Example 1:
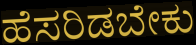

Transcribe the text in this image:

ಹೆಸರಿಡಬೇಕು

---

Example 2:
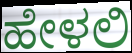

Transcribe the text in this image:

ಹೇಳಲಿ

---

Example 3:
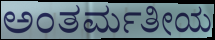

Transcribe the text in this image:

ಅಂತರ್ಮತೀಯ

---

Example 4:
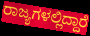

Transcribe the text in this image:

ರಾಜ್ಯಗಳಲ್ಲಿದ್ದಾರೆ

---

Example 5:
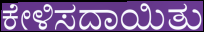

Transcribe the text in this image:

ಕೇಳಿಸದಾಯಿತು